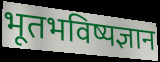
भूतभविष्यज्ञान